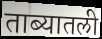
ताब्यातली